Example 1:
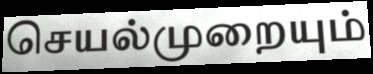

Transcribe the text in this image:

செயல்முறையும்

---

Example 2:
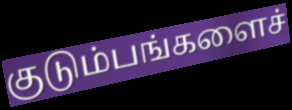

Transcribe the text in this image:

குடும்பங்களைச்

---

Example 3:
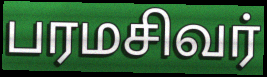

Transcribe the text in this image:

பரமசிவர்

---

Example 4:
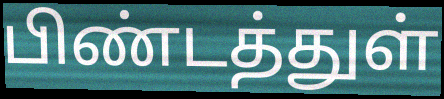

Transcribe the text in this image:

பிண்டத்துள்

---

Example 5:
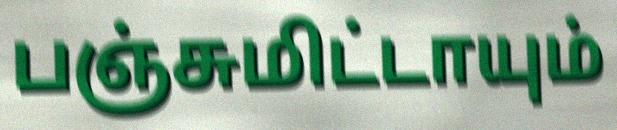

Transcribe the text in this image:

பஞ்சுமிட்டாயும்